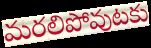
మరలిపోవుటకు